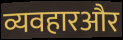
व्यवहारऔर